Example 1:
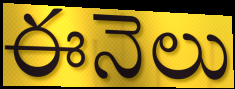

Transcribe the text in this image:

ఈనెలు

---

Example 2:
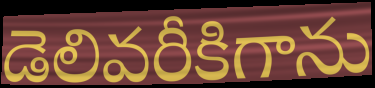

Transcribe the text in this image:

డెలివరీకిగాను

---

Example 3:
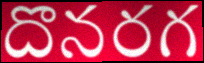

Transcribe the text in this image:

దొనరగ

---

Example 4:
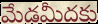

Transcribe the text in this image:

మేడమీదకు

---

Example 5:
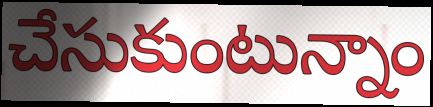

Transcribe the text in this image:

చేసుకుంటున్నాం